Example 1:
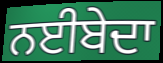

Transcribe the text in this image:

ਨਈਬੇਦਾ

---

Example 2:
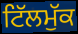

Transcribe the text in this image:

ਟਿੱਲਮੁੱਕ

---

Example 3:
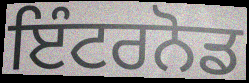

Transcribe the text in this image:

ਇੰਟਰਨੋਡ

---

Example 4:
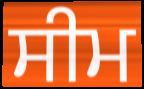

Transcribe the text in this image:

ਸੀਮ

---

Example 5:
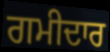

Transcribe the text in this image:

ਗਮੀਦਾਰ